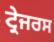
ਟ੍ਰੇਜਰਸ